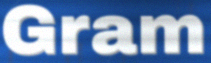
Gram